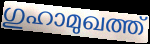
ഗുഹാമുഖത്ത്